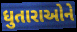
ધુતારાઓને